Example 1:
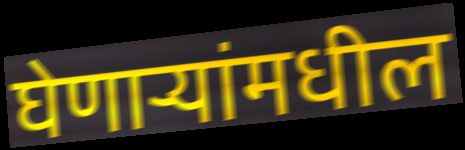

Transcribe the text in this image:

घेणाऱ्यांमधील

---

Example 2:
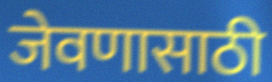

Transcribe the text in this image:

जेवणासाठी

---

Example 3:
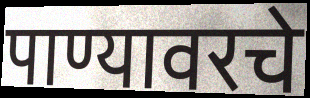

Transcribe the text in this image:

पाण्यावरचे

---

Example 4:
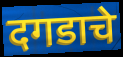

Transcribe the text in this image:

दगडाचे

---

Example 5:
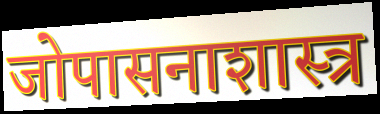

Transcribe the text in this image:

जोपासनाशास्त्र